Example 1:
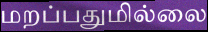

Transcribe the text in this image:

மறப்பதுமில்லை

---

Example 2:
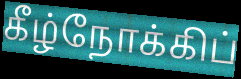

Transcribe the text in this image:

கீழ்நோக்கிப்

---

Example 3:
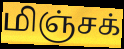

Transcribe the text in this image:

மிஞ்சக்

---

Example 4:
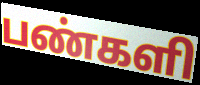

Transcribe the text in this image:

பண்களி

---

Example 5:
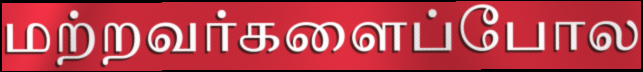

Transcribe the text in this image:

மற்றவர்களைப்போல